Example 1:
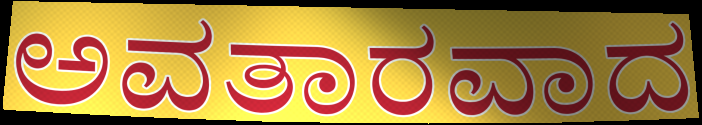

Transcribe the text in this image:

ಅವತಾರವಾದ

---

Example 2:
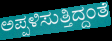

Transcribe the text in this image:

ಅಪ್ಪಳಿಸುತ್ತಿದ್ದಂತೆ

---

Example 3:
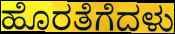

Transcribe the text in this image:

ಹೊರತೆಗೆದಳು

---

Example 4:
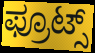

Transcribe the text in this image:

ಫ್ರೂಟ್ಸ್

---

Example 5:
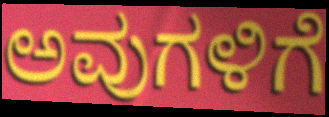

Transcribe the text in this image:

ಅವುಗಳಿಗೆ